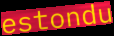
estondu